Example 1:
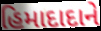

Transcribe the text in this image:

હિમાદાદાને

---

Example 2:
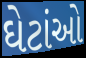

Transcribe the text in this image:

ઘેટાંઓ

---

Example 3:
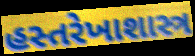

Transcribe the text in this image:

હસ્તરેખાશાસ્ત્ર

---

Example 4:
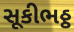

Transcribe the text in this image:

સૂકીભઠ્ઠ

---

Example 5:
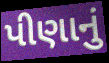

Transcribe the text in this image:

પીણાનું